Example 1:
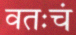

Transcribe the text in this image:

वतःचं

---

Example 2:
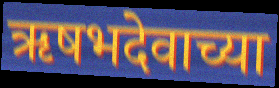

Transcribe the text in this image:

ऋषभदेवाच्या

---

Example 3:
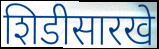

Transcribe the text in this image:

शिडीसारखे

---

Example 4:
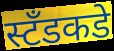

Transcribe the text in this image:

स्टॅंडकडे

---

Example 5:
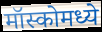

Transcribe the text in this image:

मॉस्कोमध्ये